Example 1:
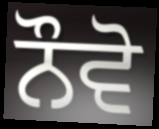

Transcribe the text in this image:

ਨੌਵੋ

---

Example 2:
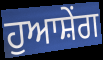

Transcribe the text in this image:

ਹੁਆਸ਼ੇਂਗ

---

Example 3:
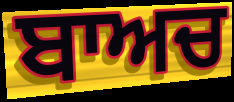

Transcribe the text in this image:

ਬਾਅਚ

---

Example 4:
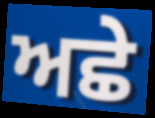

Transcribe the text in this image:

ਅਛੇ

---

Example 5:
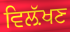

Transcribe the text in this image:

ਵਿਲ਼ੱਖਣ